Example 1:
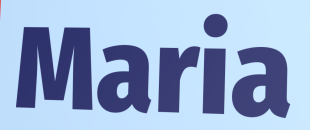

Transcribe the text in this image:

Maria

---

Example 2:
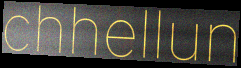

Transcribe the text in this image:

chhellun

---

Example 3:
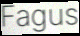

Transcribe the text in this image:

Fagus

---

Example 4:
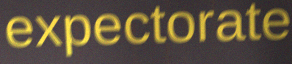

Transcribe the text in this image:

expectorate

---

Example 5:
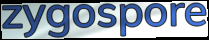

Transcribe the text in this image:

zygospore